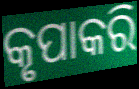
କୃପାକରି